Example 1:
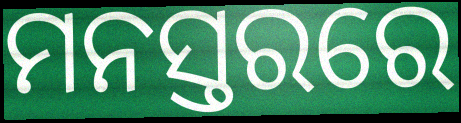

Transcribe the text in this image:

ମନସ୍ତରରେ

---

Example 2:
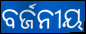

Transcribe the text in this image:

ବର୍ଜନୀୟ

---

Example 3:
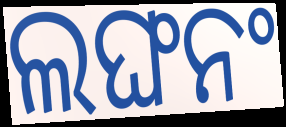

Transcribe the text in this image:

ଲଙ୍ଘନଂ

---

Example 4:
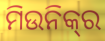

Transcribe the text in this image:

ମିଉନିକ୍‌ର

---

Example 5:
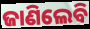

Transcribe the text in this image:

ଜାଣିଲେବି